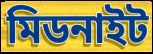
মিডনাইট